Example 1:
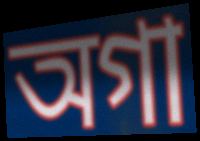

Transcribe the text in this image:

অগা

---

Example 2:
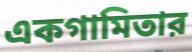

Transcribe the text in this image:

একগামিতার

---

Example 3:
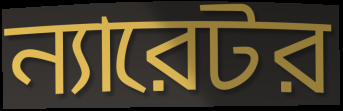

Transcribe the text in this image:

ন্যারেটর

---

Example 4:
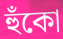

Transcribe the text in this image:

হুঁকো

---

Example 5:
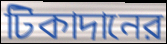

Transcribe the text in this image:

টিকাদানের